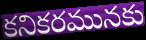
కనికరమునకు